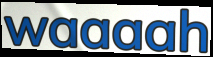
waaaah